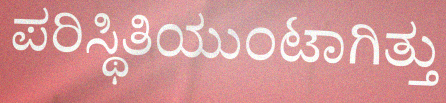
ಪರಿಸ್ಥಿತಿಯುಂಟಾಗಿತ್ತು